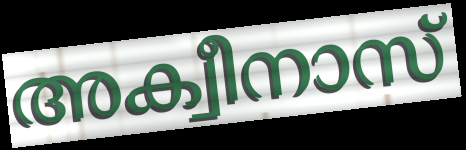
അക്വീനാസ്